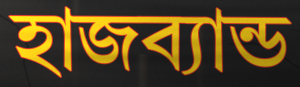
হাজব্যান্ড